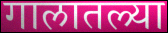
गालातल्या